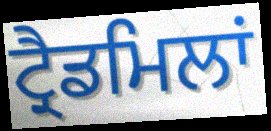
ਟ੍ਰੈਡਮਿਲਾਂ